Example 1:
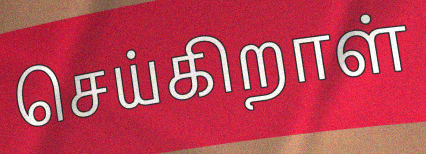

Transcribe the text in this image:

செய்கிறாள்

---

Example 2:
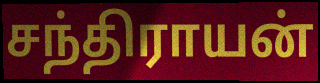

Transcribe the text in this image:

சந்திராயன்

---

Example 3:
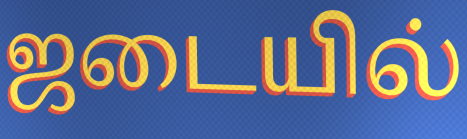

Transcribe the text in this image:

ஜடையில்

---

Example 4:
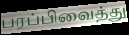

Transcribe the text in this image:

பரப்பிவைத்து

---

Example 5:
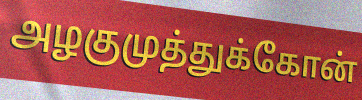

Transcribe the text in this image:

அழகுமுத்துக்கோன்